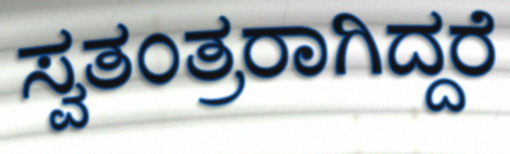
ಸ್ವತಂತ್ರರಾಗಿದ್ದರೆ